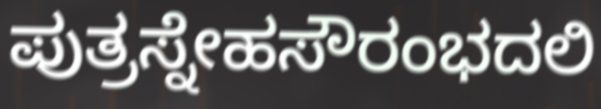
ಪುತ್ರಸ್ನೇಹಸೌರಂಭದಲಿ